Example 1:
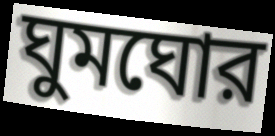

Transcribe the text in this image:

ঘুমঘোর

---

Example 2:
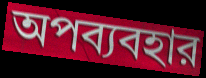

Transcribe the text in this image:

অপব্যবহার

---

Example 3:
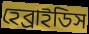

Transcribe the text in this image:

হেব্রাইডিস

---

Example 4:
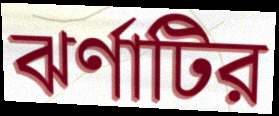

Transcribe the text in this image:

ঝর্ণাটির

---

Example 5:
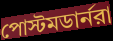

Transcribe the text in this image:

পোস্টমডার্নরা